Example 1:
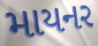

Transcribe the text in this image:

માયનર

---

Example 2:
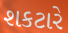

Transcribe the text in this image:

શકટારે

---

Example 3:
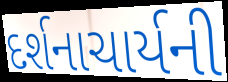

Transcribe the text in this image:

દર્શનાચાર્યની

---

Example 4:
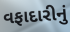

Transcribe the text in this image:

વફાદારીનું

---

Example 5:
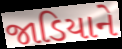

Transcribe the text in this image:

જાડિયાને